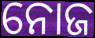
ନୋଜ